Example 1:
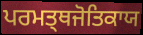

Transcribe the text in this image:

ਪਰਮਤ੍ਥਜੋਤਿਕਾਯ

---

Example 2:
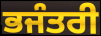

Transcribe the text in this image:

ਭਜੰਤਰੀ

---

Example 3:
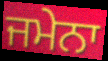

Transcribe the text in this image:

ਜਮੇਨਾ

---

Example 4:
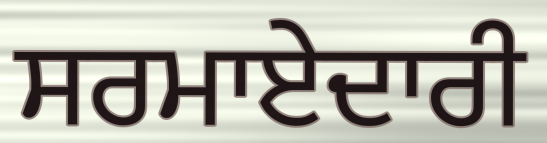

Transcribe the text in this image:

ਸਰਮਾਏਦਾਰੀ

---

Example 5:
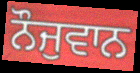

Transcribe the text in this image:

ਨੌਜੁਵਾਨ